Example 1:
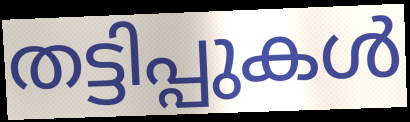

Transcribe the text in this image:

തട്ടിപ്പുകൾ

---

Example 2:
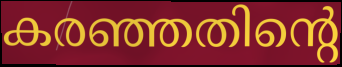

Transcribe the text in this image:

കരഞ്ഞതിന്റെ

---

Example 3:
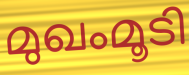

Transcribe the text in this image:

മുഖംമൂടി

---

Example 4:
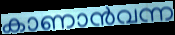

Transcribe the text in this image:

കാണാൻവന്ന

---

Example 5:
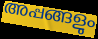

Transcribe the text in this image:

അപ്പങ്ങളും